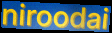
niroodai